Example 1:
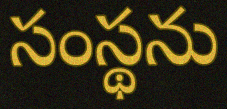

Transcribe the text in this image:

సంస్థను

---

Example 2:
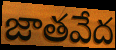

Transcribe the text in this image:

జాతవేద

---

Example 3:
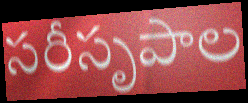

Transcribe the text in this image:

సరీసృపాల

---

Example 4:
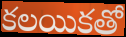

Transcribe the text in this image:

కలయికతో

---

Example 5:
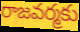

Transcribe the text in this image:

రాజవర్మకు